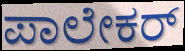
ಪಾಲೇಕರ್